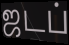
ஜடப்